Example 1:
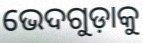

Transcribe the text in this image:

ଭେଦଗୁଡ଼ାକୁ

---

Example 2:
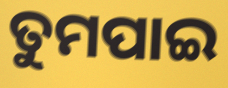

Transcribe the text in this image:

ତୁମପାଇ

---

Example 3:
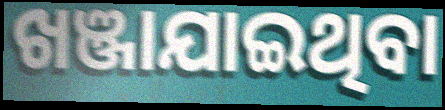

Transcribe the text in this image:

ଖଞ୍ଜାଯାଇଥିବା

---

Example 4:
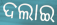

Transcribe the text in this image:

ଦଲାଇ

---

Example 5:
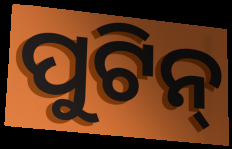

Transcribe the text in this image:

ପୁଟିନ୍